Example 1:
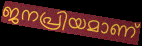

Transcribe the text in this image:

ജനപ്രിയമാണ്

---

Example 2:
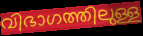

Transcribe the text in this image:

വിഭാഗത്തിലുള്ള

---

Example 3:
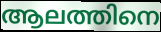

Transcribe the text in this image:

ആലത്തിനെ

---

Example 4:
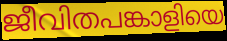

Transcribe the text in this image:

ജീവിതപങ്കാളിയെ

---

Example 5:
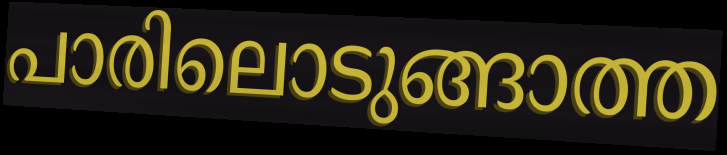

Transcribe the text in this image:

പാരിലൊടുങ്ങാത്ത